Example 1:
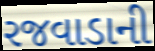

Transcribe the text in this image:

રજવાડાની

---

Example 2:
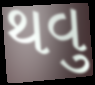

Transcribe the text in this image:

થવુ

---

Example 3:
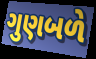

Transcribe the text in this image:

ગુણબળે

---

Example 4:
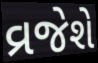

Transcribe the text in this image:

વ્રજેશે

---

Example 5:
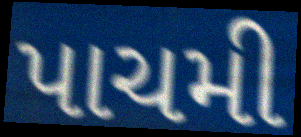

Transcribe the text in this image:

પાચમી